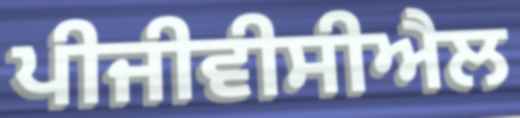
ਪੀਜੀਵੀਸੀਐਲ